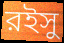
রইসু